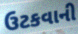
ઉટકવાની